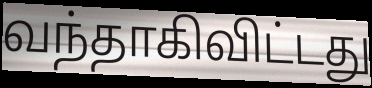
வந்தாகிவிட்டது